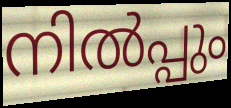
നിൽപ്പും